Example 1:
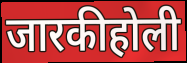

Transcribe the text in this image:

जारकीहोली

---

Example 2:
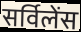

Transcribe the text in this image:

सर्विलेंस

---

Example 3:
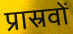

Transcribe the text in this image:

प्रास्रवों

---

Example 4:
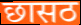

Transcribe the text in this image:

छासठ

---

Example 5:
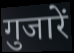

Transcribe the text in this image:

गुजारें